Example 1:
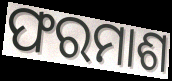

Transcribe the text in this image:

ଫରମାଶ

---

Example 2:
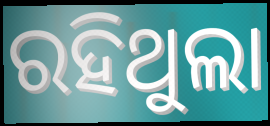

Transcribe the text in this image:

ରହିଥୁଲା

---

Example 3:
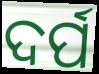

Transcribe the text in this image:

ଦର୍ପ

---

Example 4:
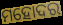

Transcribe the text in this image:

ମହୋଦର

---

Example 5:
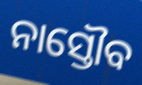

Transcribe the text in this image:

ନାସ୍ତୌବ